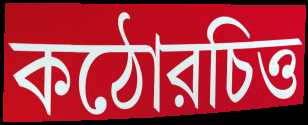
কঠোরচিত্ত